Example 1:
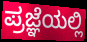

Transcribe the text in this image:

ಪ್ರಜ್ಞೆಯಲ್ಲಿ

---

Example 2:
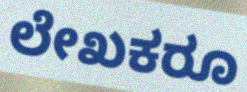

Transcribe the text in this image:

ಲೇಖಕರೂ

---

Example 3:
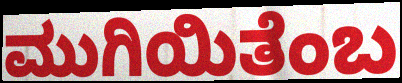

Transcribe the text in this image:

ಮುಗಿಯಿತೆಂಬ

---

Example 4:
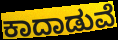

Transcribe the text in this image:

ಕಾದಾಡುವೆ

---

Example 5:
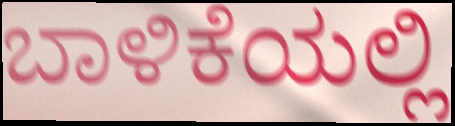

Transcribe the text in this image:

ಬಾಳಿಕೆಯಲ್ಲಿ